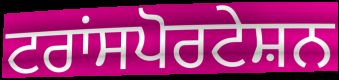
ਟਰਾਂਸਪੋਰਟੇਸ਼ਨ